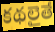
కథలైతే